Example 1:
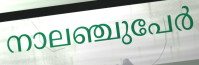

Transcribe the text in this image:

നാലഞ്ചുപേർ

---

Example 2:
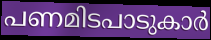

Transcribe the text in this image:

പണമിടപാടുകാർ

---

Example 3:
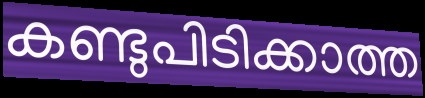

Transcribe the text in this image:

കണ്ടുപിടിക്കാത്ത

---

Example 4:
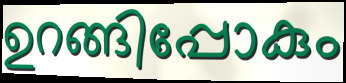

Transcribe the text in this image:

ഉറങ്ങിപ്പോകും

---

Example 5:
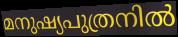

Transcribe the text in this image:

മനുഷ്യപുത്രനിൽ